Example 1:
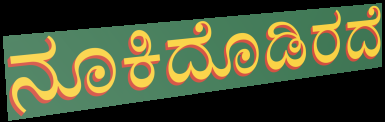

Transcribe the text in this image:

ನೂಕಿದೊಡಿರದೆ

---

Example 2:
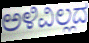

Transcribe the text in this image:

ಅಳಿವಿಲ್ಲದ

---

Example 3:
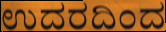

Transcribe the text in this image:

ಉದರದಿಂದ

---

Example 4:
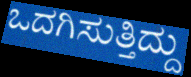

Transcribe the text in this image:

ಒದಗಿಸುತ್ತಿದ್ದು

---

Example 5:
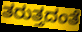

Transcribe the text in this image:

ತರುತ್ತದಂತೆ